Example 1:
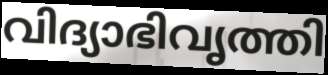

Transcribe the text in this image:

വിദ്യാഭിവൃത്തി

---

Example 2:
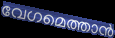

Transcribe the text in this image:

വേഗമെത്താൻ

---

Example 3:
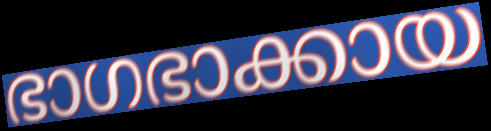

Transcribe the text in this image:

ഭാഗഭാക്കായ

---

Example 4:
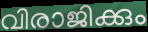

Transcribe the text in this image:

വിരാജിക്കും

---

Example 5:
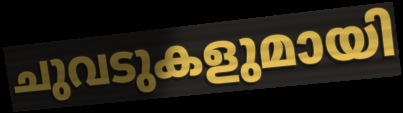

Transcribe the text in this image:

ചുവടുകളുമായി